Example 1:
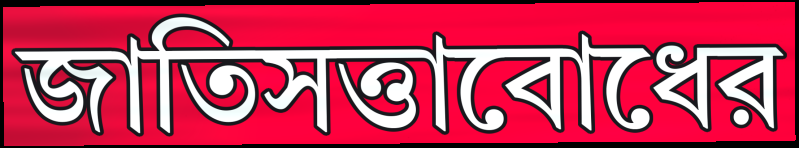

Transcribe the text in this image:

জাতিসত্তাবোধের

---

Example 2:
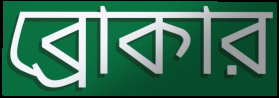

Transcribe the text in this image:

ব্রোকার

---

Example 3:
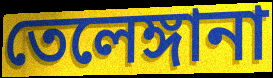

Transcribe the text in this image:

তেলেঙ্গানা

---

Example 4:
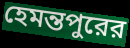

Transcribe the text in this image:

হেমন্তপুরের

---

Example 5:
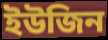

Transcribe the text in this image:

ইউজিন